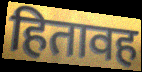
हितावह